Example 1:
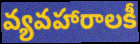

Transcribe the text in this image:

వ్యవహారాలకీ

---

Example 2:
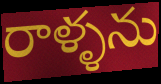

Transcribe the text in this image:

రాళ్ళను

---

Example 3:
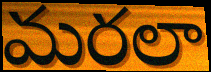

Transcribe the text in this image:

మరలా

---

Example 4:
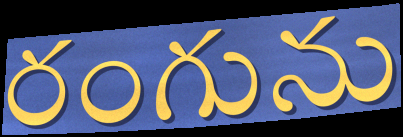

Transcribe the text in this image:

రంగును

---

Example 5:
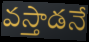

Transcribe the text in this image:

వస్తాడనే